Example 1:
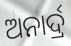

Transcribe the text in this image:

ଅନାର୍ଦ୍ର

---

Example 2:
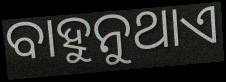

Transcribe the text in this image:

ବାହୁନୁଥାଏ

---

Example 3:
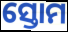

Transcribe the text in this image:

ସ୍ତୋମ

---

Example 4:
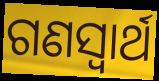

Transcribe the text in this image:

ଗଣସ୍ୱାର୍ଥ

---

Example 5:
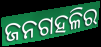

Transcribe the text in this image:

ଜନଗହଳିର